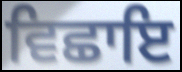
ਵਿਛਾਇ